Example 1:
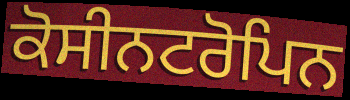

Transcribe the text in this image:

ਕੋਸੀਨਟਰੋਪਿਨ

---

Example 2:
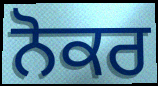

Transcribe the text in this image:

ਨੋਕਰ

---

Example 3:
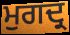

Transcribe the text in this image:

ਮੁਗਦ੍ਰ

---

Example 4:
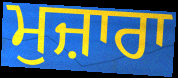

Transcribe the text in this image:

ਮੁਜ਼ਾਰਾ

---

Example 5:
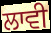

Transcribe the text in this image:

ਲਾਵੀ